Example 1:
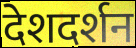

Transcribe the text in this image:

देशदर्शन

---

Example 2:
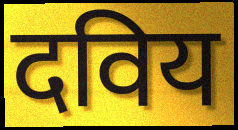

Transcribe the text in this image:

दविय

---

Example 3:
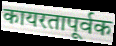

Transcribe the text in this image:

कायरतापूर्वक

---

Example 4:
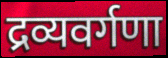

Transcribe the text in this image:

द्रव्यवर्गणा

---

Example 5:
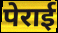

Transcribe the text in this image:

पेराई